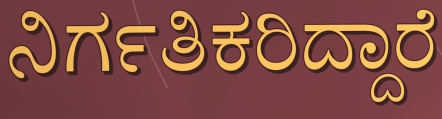
ನಿರ್ಗತಿಕರಿದ್ದಾರೆ